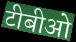
टीबीओ